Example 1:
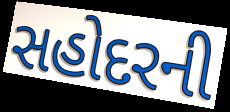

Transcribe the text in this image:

સહોદરની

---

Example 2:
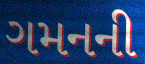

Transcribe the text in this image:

ગમનની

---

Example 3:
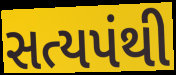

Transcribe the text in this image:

સત્યપંથી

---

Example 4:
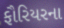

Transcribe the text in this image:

ફૌરિયરના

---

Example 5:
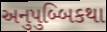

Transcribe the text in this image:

અનુપુબ્બિકથા